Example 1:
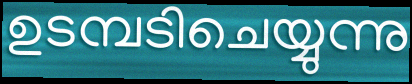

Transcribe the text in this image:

ഉടമ്പടിചെയ്യുന്നു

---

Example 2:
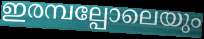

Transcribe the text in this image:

ഇരമ്പല്പോലെയും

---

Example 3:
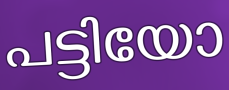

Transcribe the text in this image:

പട്ടിയോ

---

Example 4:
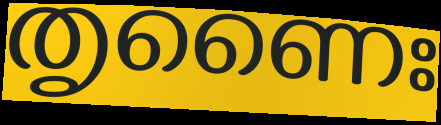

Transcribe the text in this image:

തൃണൈഃ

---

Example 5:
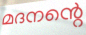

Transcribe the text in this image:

മദനന്റെ